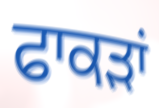
ਫਾਕੜਾਂ